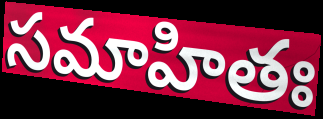
సమాహితః